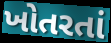
ખોતરતાં